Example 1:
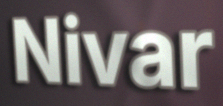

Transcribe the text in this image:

Nivar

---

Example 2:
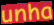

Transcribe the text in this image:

unha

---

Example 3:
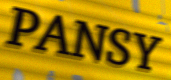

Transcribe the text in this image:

PANSY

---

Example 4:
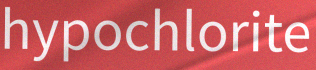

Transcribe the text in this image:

hypochlorite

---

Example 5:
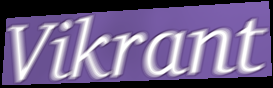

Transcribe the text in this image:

Vikrant